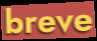
breve